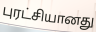
புரட்சியானது